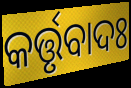
କର୍ତ୍ତୃବାଦଃ